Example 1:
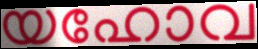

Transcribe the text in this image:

യഹോവ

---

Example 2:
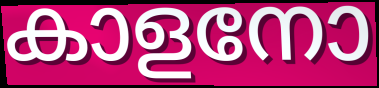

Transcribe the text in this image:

കാളനോ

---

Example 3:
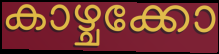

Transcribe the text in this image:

കാഴ്ചക്കോ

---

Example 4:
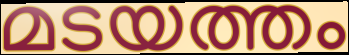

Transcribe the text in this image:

മടയത്തം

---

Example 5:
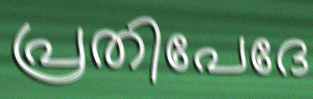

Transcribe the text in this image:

പ്രതിപേദേ